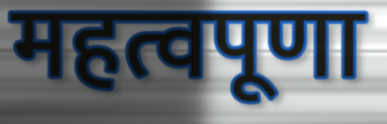
महत्वपूणा